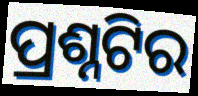
ପ୍ରଶ୍ନଟିର